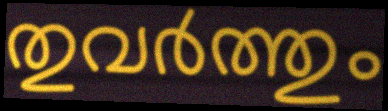
തുവർത്തും